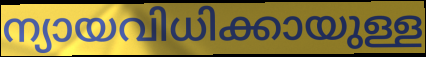
ന്യായവിധിക്കായുള്ള